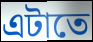
এটাতে